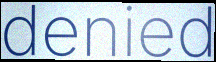
denied